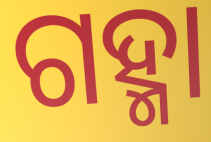
ଗହ୍ମା